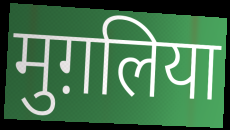
मुग़लिया